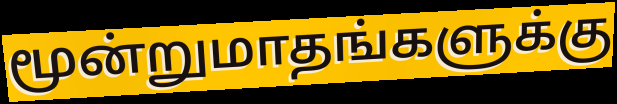
மூன்றுமாதங்களுக்கு